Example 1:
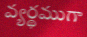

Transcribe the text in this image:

వ్యర్థముగా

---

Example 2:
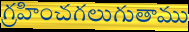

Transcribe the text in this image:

గ్రహించగలుగుతాము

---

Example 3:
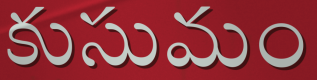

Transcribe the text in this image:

కుసుమం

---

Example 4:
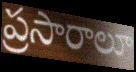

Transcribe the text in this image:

ప్రసారాలూ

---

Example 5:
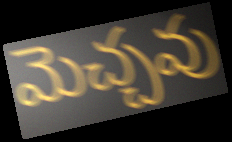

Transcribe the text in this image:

మెచ్చవు